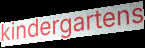
kindergartens